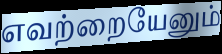
எவற்றையேனும்